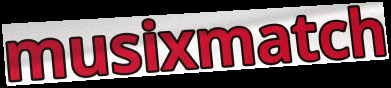
musixmatch